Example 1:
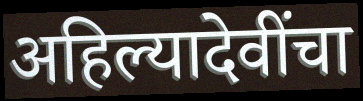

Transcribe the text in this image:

अहिल्यादेवींचा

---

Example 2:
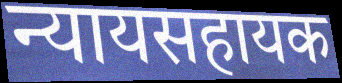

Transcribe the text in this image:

न्यायसहायक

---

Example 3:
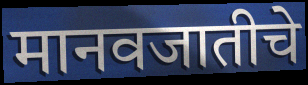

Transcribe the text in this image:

मानवजातीचे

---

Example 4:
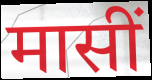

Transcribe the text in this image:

मासीं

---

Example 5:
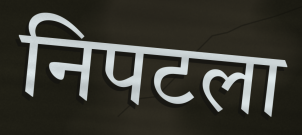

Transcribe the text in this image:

निपटला